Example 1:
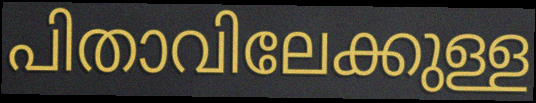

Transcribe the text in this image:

പിതാവിലേക്കുള്ള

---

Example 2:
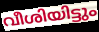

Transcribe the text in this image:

വീശിയിട്ടും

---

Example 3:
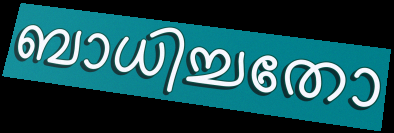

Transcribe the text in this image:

ബാധിച്ചതോ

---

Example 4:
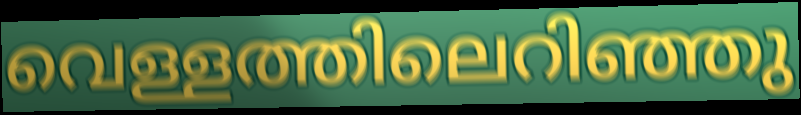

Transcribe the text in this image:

വെള്ളത്തിലെറിഞ്ഞു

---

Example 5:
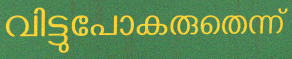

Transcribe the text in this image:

വിട്ടുപോകരുതെന്ന്